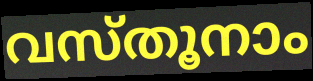
വസ്തൂനാം